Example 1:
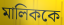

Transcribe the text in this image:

মালিককে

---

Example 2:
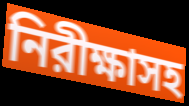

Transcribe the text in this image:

নিরীক্ষাসহ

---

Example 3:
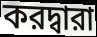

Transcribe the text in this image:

করদ্বারা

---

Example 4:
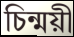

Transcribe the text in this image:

চিন্ময়ী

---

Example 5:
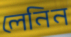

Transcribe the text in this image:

লেনিন